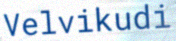
Velvikudi